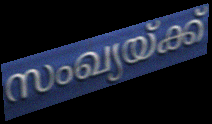
സംഖ്യയ്ക്ക്